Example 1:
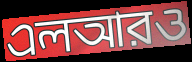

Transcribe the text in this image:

এলআরও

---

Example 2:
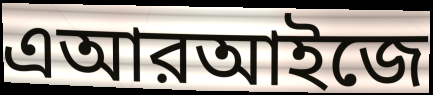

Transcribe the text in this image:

এআরআইজে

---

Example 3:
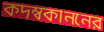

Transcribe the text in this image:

কদম্বকাননের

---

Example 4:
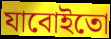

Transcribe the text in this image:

যাবোইতো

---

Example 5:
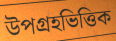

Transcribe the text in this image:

উপগ্রহভিত্তিক